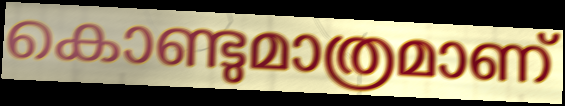
കൊണ്ടുമാത്രമാണ്